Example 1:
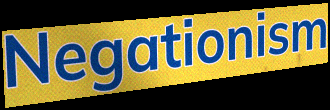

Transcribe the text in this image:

Negationism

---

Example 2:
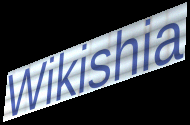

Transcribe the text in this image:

Wikishia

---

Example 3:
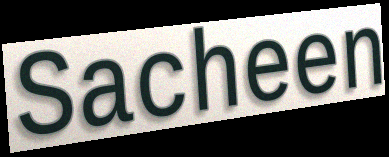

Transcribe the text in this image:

Sacheen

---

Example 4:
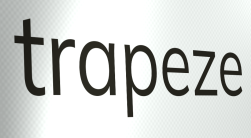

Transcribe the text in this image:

trapeze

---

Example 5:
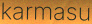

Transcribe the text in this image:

karmasu